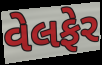
વેલફેર